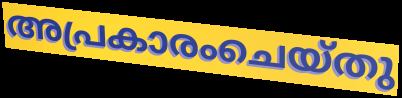
അപ്രകാരംചെയ്തു